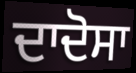
ਦਾਦੋਸਾ